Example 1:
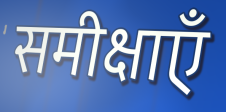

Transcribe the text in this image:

समीक्षाएँ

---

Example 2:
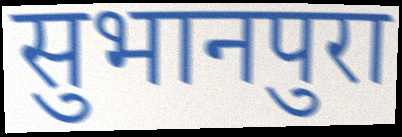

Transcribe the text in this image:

सुभानपुरा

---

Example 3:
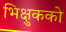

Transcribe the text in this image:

भिक्षुकको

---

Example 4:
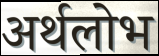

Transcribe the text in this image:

अर्थलोभ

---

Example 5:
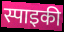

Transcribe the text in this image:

स्पाइकी